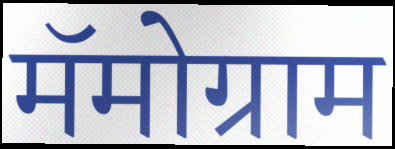
मॅमोग्राम